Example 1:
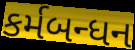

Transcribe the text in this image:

કર્મબન્ધન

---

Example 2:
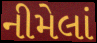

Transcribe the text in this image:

નીમેલાં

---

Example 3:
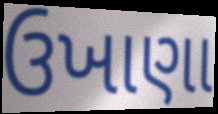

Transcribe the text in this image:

ઉખાણા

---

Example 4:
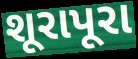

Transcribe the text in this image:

શૂરાપૂરા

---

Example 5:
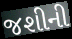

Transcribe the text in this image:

જશીની